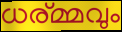
ധര്മ്മവും